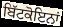
ਬਿੱਟਕੋਇਨਾਂ